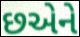
છએને